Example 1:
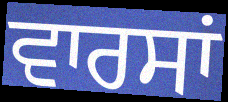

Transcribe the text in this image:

ਵਾਰਸਾਂ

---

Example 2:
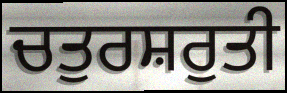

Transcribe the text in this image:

ਚਤੁਰਸ਼ਰੁਤੀ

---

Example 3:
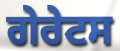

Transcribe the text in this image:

ਗੇਰੇਟਸ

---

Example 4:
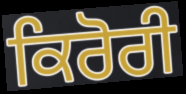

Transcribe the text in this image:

ਕਿਰੋਰੀ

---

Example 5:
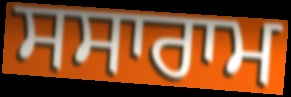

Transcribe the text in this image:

ਸਸਾਰਾਮ